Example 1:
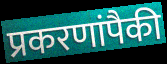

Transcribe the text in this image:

प्रकरणांपैकी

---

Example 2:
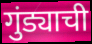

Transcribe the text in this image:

गुंड्याची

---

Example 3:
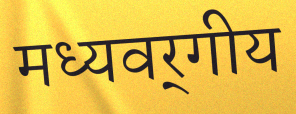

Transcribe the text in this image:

मध्यवर्गीय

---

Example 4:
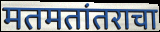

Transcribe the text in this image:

मतमतांतराचा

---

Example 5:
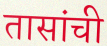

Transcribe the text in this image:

तासांची